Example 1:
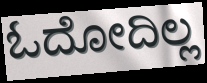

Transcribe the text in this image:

ಓದೋದಿಲ್ಲ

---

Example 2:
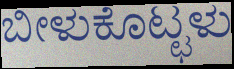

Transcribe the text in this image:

ಬೀಳುಕೊಟ್ಟಳು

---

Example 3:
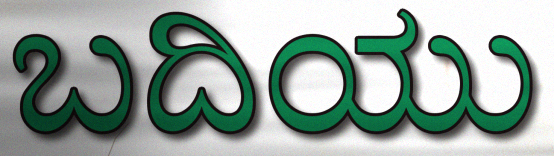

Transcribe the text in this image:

ಬದಿಯು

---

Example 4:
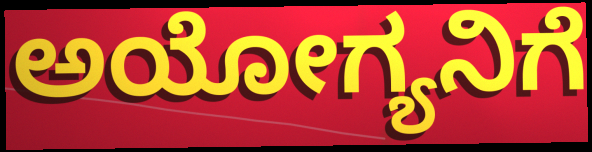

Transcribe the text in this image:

ಅಯೋಗ್ಯನಿಗೆ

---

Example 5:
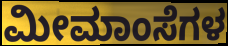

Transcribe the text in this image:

ಮೀಮಾಂಸೆಗಳ